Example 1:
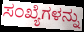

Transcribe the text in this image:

ಸಂಖ್ಯೆಗಳನ್ನು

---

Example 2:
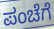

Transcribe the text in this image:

ಪಂಚೆಗೆ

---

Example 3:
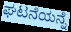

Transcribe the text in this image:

ಘಟನೆಯನ್ನೆ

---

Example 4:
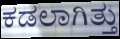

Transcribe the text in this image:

ಕಡಲಾಗಿತ್ತು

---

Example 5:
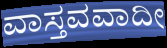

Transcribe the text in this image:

ವಾಸ್ತವವಾದೀ